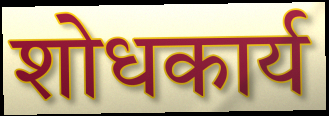
शोधकार्य